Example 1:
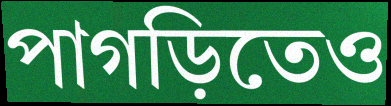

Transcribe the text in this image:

পাগড়িতেও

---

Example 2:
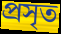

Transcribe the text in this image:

প্রসৃত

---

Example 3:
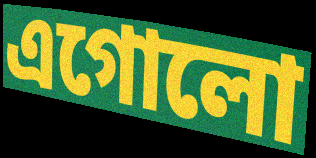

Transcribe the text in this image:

এগোলো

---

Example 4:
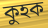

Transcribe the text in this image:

কুহক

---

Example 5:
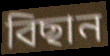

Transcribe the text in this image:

বিছান